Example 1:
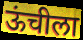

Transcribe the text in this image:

ऊंचीला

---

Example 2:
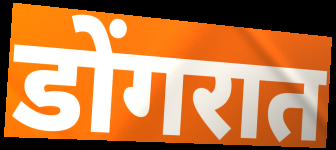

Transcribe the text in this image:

डोंगरात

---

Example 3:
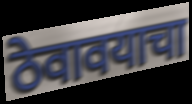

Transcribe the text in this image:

ठेवावयाचा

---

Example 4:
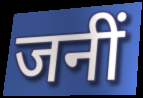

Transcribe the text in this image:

जनीं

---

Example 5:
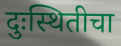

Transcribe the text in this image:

दुःस्थितीचा